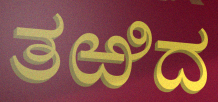
ತಱಿದ